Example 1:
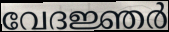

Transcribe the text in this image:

വേദജ്ഞർ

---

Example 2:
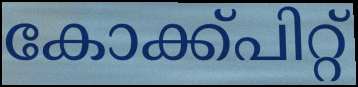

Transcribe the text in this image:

കോക്ക്പിറ്റ്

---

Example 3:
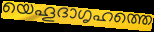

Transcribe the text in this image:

യെഹൂദാഗൃഹത്തെ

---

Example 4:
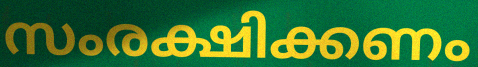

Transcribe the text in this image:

സംരക്ഷിക്കണം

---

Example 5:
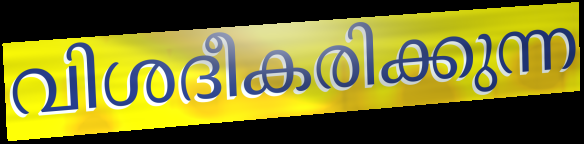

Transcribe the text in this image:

വിശദീകരിക്കുന്ന